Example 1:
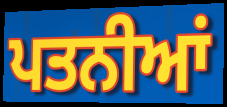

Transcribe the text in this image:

ਪਤਨੀਆਂ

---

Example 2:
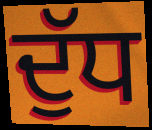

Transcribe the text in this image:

ਦੁੱਧ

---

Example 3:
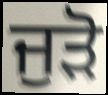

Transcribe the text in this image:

ਜੁੜੋ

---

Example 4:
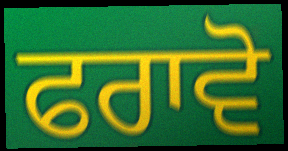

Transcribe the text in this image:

ਫਰਾਵੋ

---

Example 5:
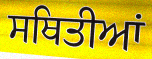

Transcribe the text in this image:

ਸਥਿਤੀਆਂ